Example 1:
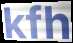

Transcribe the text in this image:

kfh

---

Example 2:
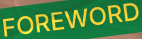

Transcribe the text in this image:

FOREWORD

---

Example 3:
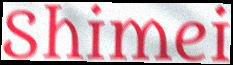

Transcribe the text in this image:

Shimei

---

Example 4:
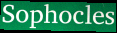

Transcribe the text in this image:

Sophocles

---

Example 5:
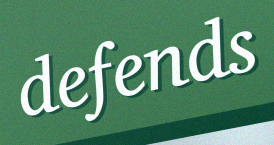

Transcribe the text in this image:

defends